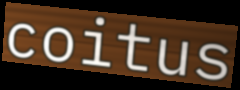
coitus